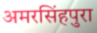
अमरसिंहपुरा